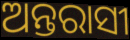
ଅନ୍ତରାସୀ